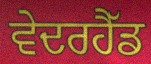
ਵੇਦਰਹੈੱਡ